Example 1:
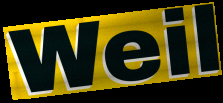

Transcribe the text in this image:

Weil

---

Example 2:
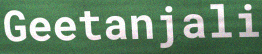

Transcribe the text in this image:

Geetanjali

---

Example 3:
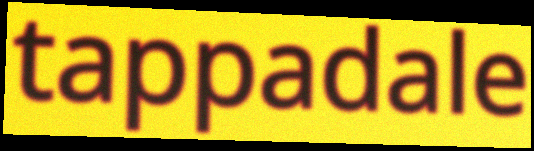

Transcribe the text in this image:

tappadale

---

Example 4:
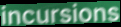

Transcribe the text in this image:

incursions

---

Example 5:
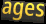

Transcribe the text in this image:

ages